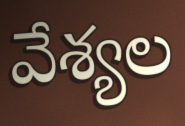
వేశ్యల